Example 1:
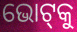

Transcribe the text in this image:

ଭୋଟ୍‍କୁ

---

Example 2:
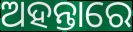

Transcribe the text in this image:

ଅହନ୍ତାରେ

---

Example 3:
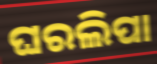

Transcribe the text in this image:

ଘରଲିପା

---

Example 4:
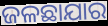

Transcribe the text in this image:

ଜଳଛାଯାର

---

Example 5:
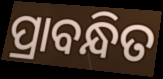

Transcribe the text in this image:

ପ୍ରାବନ୍ଧିତ